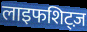
लाइफशिट्ज़